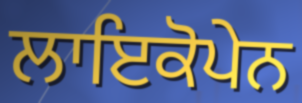
ਲਾਇਕੋਪੇਨ